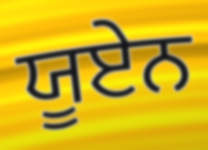
ਯੂਏਨ